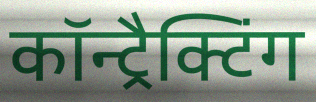
कॉन्ट्रैक्टिंग